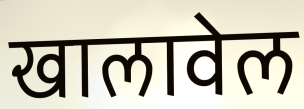
खालावेल